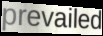
prevailed